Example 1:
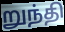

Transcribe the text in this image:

றுந்தி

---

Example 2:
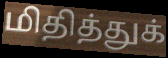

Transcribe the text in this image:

மிதித்துக்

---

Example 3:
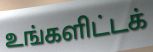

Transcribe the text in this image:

உங்களிட்டக்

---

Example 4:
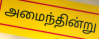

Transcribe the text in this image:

அமைந்தின்று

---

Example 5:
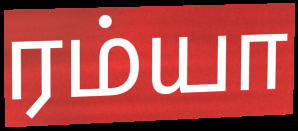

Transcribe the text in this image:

ரம்யா